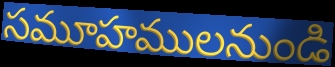
సమూహములనుండి